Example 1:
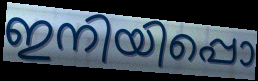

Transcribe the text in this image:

ഇനിയിപ്പൊ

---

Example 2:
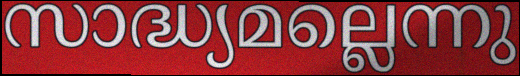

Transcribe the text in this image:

സാദ്ധ്യമല്ലെന്നു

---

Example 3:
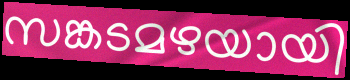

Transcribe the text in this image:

സങ്കടമഴയായി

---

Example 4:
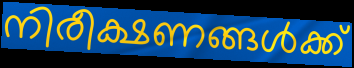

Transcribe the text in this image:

നിരീക്ഷണങ്ങൾക്ക്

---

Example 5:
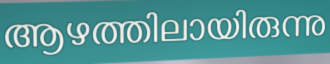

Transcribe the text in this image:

ആഴത്തിലായിരുന്നു